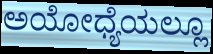
ಅಯೋಧ್ಯೆಯಲ್ಲೂ